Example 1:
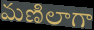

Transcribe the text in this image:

మణిలాగా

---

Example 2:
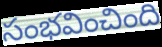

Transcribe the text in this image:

సంభవించింది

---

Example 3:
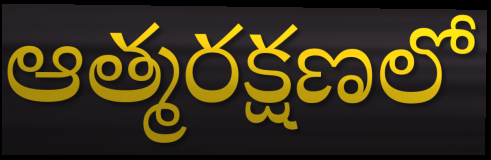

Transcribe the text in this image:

ఆత్మరక్షణలో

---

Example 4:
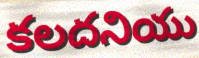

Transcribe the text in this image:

కలదనియు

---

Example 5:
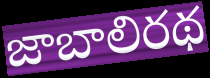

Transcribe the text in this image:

జాబాలిరథ